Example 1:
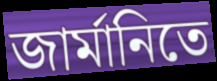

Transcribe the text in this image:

জার্মানিতে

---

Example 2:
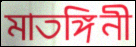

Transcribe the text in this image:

মাতঙ্গিনী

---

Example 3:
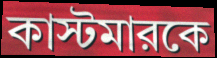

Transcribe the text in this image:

কাস্টমারকে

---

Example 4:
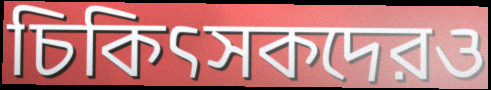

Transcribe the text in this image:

চিকিৎসকদেরও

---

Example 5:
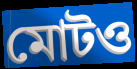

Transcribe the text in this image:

মোটও